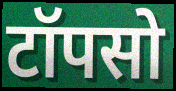
टॉपसो